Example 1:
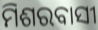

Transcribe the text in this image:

ମିଶରବାସୀ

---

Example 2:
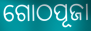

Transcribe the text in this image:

ଗୋଠପୂଜା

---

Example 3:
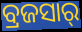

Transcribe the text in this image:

ବ୍ରଜସାର୍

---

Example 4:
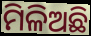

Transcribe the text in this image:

ମିଳିଅଛି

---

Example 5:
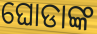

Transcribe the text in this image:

ଘୋଡାଙ୍କ